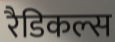
रैडिकल्स